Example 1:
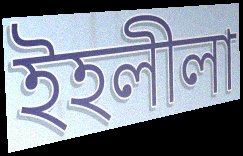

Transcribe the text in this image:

ইহলীলা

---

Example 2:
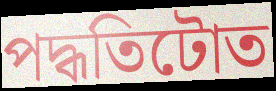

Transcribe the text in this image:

পদ্ধতিটোত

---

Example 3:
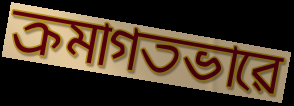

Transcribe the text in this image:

ক্ৰমাগতভাৱে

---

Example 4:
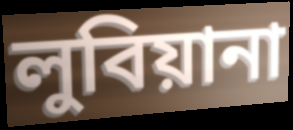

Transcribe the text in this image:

লুবিয়ানা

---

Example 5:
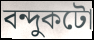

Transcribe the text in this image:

বন্দুকটো